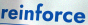
reinforce